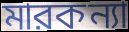
মারকন্যা